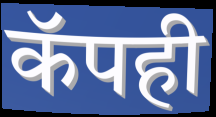
कॅपही